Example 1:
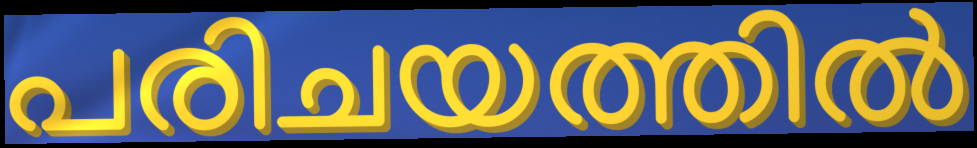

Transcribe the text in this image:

പരിചയത്തിൽ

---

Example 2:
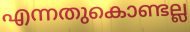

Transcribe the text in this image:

എന്നതുകൊണ്ടല്ല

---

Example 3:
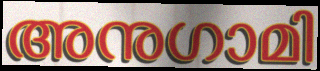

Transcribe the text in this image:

അനുഗാമി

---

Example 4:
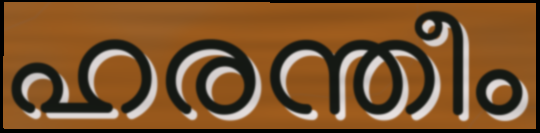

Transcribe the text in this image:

ഹരന്തീം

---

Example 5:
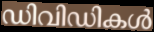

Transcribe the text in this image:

ഡിവിഡികൾ